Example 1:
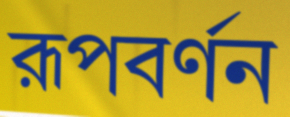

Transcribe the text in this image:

রূপবর্ণন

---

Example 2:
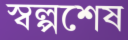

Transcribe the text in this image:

স্বল্পশেষ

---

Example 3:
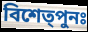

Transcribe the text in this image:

বিশেত্পুনঃ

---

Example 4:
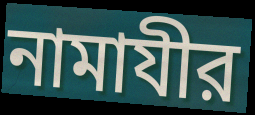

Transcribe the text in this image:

নামাযীর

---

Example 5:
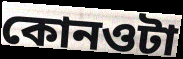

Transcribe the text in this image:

কোনওটা